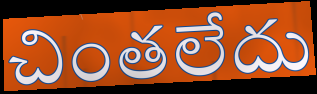
చింతలేదు